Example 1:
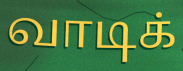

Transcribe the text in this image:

வாடிக்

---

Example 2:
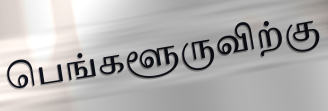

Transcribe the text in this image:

பெங்களூருவிற்கு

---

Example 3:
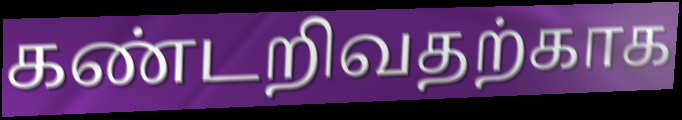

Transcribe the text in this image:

கண்டறிவதற்காக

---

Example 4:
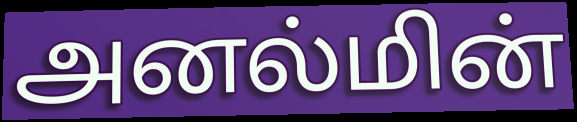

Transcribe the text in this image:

அனல்மின்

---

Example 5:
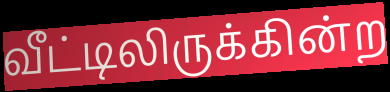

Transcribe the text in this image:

வீட்டிலிருக்கின்ற